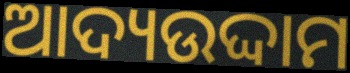
ଆଦ୍ୟଉଦ୍ଦାମ